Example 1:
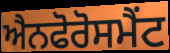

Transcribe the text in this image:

ਐਨਫੋਰੋਸਮੈਂਟ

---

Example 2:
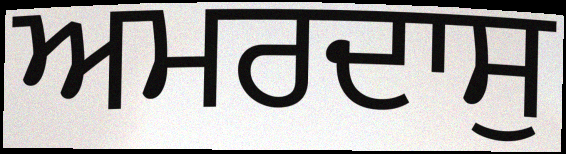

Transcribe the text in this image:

ਅਮਰਦਾਸੁ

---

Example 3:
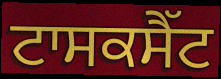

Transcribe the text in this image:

ਟਾਸਕਸੈੱਟ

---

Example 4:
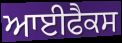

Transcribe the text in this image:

ਆਈਫੈਕਸ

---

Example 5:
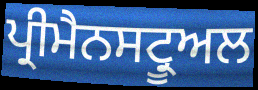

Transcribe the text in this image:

ਪ੍ਰੀਮੈਨਸਟ੍ਰੂਅਲ